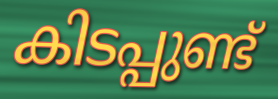
കിടപ്പുണ്ട്